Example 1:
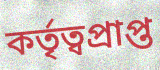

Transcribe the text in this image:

কৰ্তৃত্বপ্ৰাপ্ত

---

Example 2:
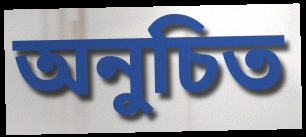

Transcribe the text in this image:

অনুচিত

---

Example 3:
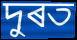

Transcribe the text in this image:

দুৰত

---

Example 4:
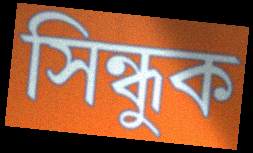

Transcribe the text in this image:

সিন্ধুক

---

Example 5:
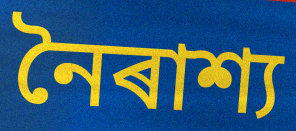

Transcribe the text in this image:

নৈৰাশ্য